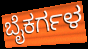
ಬೈಕರ್ಗಳ